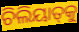
ଚିଲିୟାତ୍‍କୁ